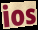
ios